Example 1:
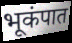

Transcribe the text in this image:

भूकंपात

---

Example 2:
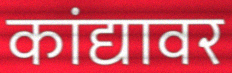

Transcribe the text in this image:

कांद्यावर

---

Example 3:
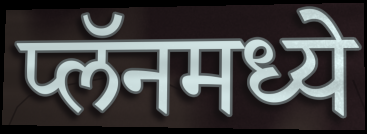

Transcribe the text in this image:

प्लॅनमध्ये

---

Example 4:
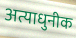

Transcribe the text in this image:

अत्याधुनीक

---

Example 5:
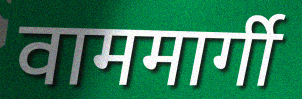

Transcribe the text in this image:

वाममार्गी